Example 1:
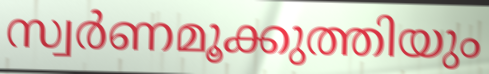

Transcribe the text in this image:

സ്വർണമൂക്കുത്തിയും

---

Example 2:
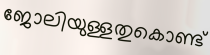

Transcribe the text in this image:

ജോലിയുള്ളതുകൊണ്ട്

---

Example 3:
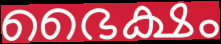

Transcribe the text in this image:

ഭൈക്ഷം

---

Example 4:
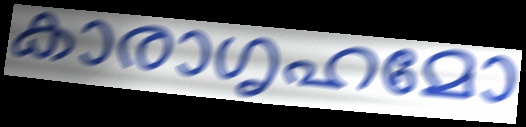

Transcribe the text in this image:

കാരാഗൃഹമോ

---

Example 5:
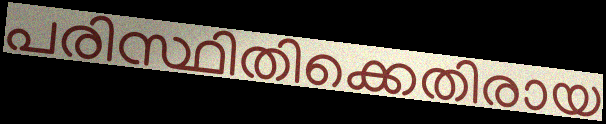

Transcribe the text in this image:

പരിസ്ഥിതിക്കെതിരായ